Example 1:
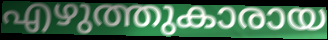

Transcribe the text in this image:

എഴുത്തുകാരായ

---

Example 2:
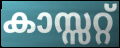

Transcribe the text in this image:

കാസ്സറ്റ്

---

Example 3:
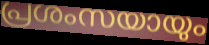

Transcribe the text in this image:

പ്രശംസയായും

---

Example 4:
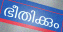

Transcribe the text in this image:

ഭീതിക്കും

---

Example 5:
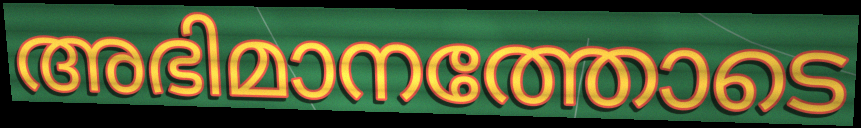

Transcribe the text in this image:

അഭിമാനത്തോടെ